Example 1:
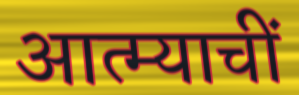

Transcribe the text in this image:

आत्म्याचीं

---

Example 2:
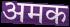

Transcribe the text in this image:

अमक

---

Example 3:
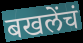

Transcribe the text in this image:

बखलेंचं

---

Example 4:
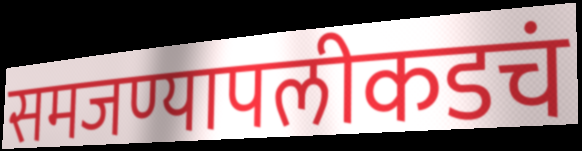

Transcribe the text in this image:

समजण्यापलीकडचं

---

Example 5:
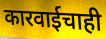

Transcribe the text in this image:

कारवाईचाही